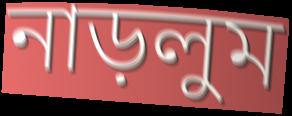
নাড়লুম